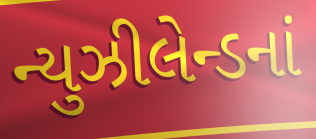
ન્યુઝીલેન્ડનાં